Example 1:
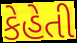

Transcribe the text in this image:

કેહેતી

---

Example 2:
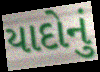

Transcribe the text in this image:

યાદોનું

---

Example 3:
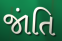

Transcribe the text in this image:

જાંતિ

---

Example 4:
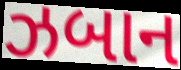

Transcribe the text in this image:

ઝબાન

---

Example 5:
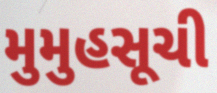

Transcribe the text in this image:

મુમુહસૂચી